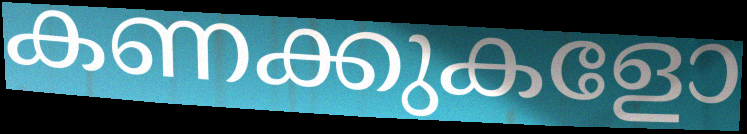
കണക്കുകളോ